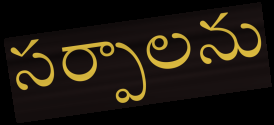
సర్పాలను